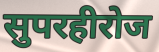
सुपरहीरोज